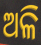
ଅଳି